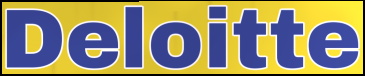
Deloitte